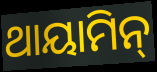
ଥାୟାମିନ୍